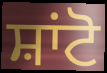
ਸ਼ਾਂਟੋ